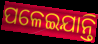
ପଳେଇଯାନ୍ତି